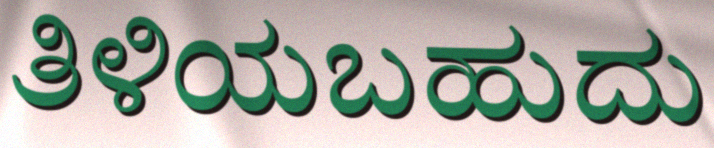
ತಿಳಿಯಬಹುದು